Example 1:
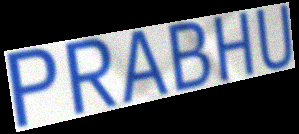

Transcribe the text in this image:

PRABHU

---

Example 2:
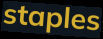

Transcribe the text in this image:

staples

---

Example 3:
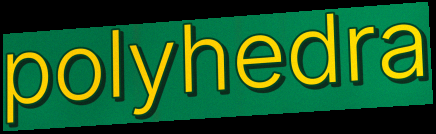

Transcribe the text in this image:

polyhedra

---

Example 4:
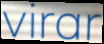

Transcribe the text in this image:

virar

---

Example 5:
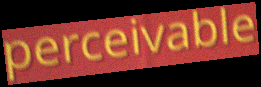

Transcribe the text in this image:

perceivable